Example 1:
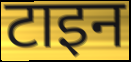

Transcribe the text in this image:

टाइन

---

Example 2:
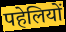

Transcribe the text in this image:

पहेलियों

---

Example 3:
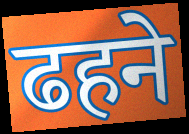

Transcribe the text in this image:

ढहने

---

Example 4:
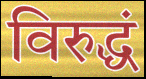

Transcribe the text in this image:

विरुद्धं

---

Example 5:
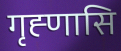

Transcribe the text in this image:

गृह्णासि